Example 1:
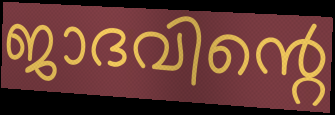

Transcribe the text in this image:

ജാദവിന്റെ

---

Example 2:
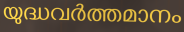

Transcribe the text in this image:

യുദ്ധവർത്തമാനം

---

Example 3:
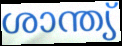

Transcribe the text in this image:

ശാന്ത്യ്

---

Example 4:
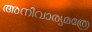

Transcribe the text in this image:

അനിവാര്യമത്രേ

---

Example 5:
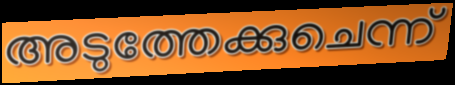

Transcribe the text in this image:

അടുത്തേക്കുചെന്ന്